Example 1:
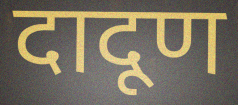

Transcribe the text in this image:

दादूण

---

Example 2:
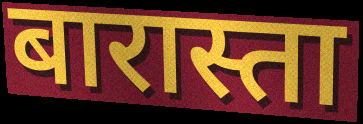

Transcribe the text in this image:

बारास्ता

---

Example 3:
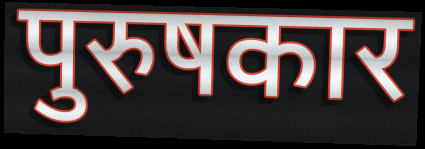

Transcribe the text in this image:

पुरुषकार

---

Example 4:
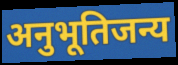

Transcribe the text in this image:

अनुभूतिजन्य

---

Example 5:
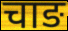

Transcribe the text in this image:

चाङ